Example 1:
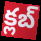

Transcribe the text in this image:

క్లబ్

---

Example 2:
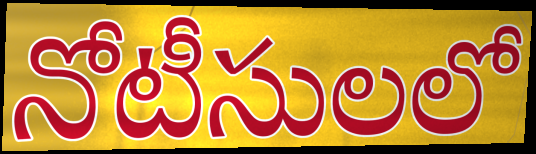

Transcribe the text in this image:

నోటీసులలో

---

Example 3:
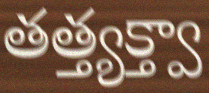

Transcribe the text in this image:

తత్త్యక్త్వా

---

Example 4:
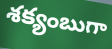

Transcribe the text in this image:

శక్యంబుగా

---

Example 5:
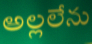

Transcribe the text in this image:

అల్లలేను